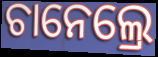
ଚାନେଲ୍ରେ